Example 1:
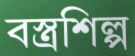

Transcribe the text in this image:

বস্ত্ৰশিল্প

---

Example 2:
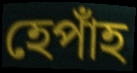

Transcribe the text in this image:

হেপাঁহ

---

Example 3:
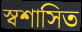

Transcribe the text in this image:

স্বশাসিত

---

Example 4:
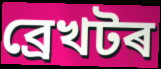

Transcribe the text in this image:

ব্ৰেখটৰ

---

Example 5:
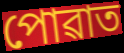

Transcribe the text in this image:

পোৱাত